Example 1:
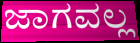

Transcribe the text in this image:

ಜಾಗವಲ್ಲ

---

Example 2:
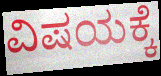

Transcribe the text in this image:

ವಿಷಯಕ್ಕೆ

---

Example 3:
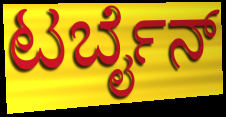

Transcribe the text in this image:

ಟರ್ಬೈನ್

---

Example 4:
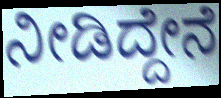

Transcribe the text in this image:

ನೀಡಿದ್ದೇನೆ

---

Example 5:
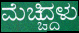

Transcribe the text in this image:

ಮೆಚ್ಚಿದ್ದಳು